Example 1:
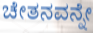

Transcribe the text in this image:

ಚೇತನವನ್ನೇ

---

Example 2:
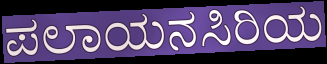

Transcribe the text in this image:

ಪಲಾಯನಸಿರಿಯ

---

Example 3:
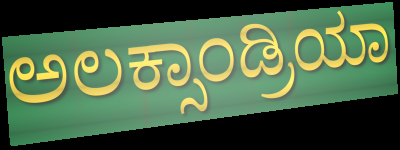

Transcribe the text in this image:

ಅಲಕ್ಸಾಂಡ್ರಿಯಾ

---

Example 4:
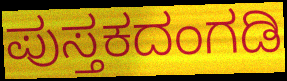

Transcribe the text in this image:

ಪುಸ್ತಕದಂಗಡಿ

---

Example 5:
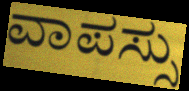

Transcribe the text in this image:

ವಾಪಸ್ಸು